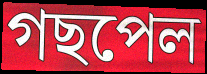
গছপেল